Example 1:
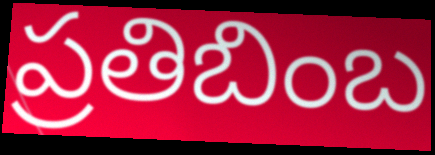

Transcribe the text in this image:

ప్రతిబింబ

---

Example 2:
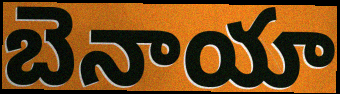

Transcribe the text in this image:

బెనాయా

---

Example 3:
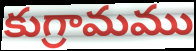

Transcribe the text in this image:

కుగ్రామము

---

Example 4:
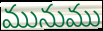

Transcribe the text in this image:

మునుము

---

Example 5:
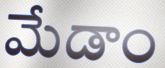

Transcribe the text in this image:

మేడాం